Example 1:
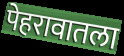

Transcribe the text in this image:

पेहरावातला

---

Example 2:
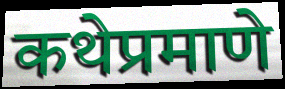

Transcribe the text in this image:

कथेप्रमाणे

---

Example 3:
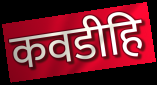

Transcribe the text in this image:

कवडीहि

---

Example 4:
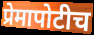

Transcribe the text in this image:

प्रेमापोटीच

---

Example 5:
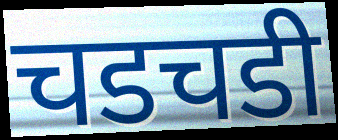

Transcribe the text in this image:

चडचडी